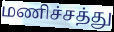
மணிச்சத்து